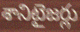
శానిటైజర్లు